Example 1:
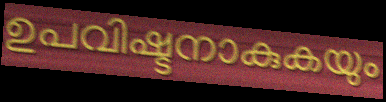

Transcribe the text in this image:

ഉപവിഷ്ടനാകുകയും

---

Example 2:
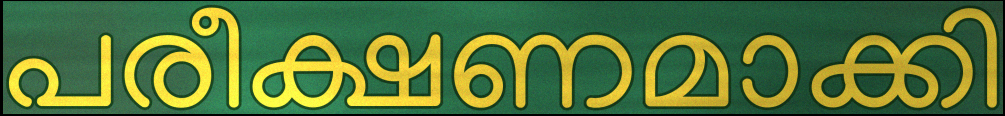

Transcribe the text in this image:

പരീക്ഷണമാക്കി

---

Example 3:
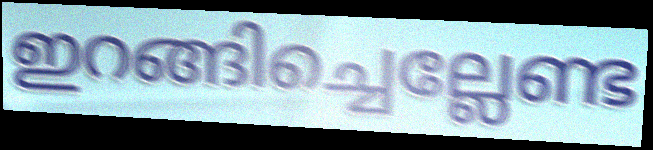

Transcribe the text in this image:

ഇറങ്ങിച്ചെല്ലേണ്ട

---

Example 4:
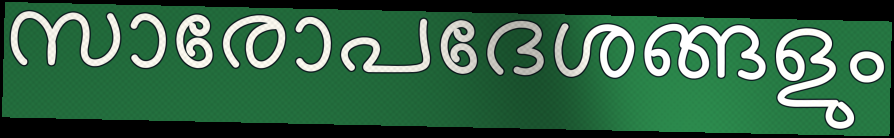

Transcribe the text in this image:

സാരോപദേശങ്ങളും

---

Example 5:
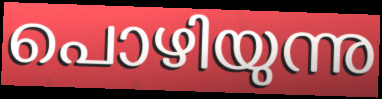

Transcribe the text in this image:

പൊഴിയുന്നു